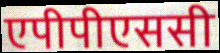
एपीपीएससी